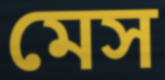
মেস